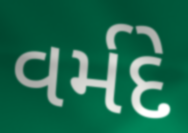
વર્મદે